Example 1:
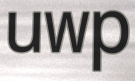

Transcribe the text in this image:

uwp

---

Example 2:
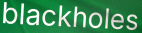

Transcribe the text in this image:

blackholes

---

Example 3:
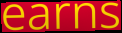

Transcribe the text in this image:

earns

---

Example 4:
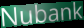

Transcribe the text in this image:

Nubank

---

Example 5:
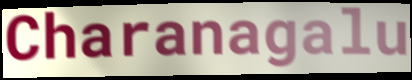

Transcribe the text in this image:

Charanagalu